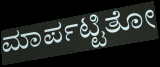
ಮಾರ್ಪಟ್ಟಿತೋ